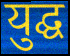
युद्घ